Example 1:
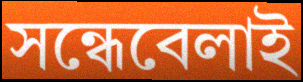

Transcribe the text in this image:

সন্ধেবেলাই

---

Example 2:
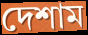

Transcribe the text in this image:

দেশাম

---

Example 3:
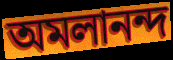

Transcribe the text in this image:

অমলানন্দ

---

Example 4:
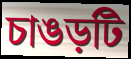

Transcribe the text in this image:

চাঙড়টি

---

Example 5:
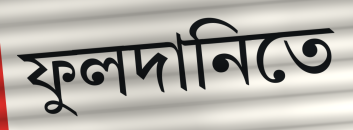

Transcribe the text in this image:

ফুলদানিতে